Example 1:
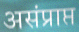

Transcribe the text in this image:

असंप्राप्त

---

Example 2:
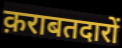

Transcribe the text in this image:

क़राबतदारों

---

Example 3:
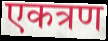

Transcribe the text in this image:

एकत्रण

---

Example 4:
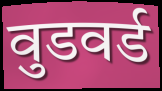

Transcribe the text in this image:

वुडवर्ड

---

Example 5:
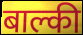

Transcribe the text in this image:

बाल्‍की